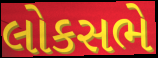
લોકસભે